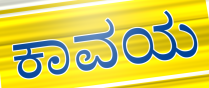
ಕಾವಯ